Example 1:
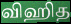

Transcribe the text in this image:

விஹித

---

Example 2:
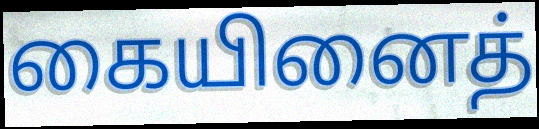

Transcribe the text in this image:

கையினைத்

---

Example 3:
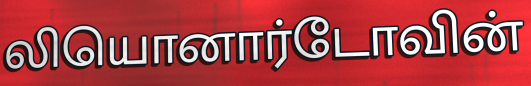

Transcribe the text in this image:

லியொனார்டோவின்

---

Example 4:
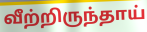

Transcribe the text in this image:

வீற்றிருந்தாய்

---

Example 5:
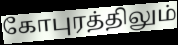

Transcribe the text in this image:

கோபுரத்திலும்